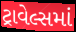
ટ્રાવેલ્સમાં